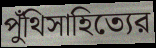
পুঁথিসাহিত্যের